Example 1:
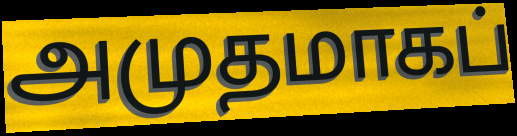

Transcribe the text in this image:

அமுதமாகப்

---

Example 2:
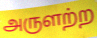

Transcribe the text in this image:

அருளற்ற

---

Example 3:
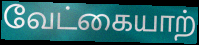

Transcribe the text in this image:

வேட்கையாற்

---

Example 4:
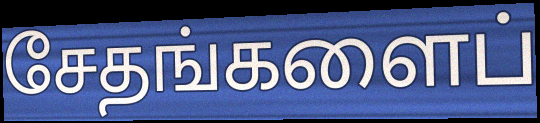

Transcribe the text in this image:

சேதங்களைப்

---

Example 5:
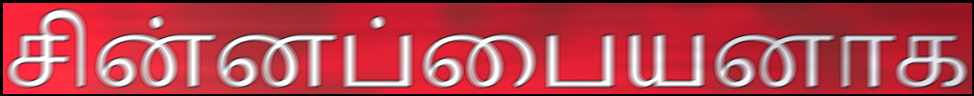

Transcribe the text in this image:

சின்னப்பையனாக